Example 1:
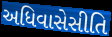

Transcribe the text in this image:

અધિવાસેસીતિ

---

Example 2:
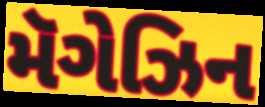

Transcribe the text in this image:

મૅગેઝિન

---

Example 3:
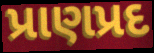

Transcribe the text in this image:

પ્રાણપ્રદ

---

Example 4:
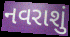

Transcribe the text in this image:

નવરાશું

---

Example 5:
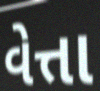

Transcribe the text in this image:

વેત્તા